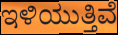
ಇಳಿಯುತ್ತಿವೆ